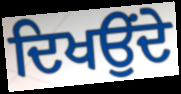
ਦਿਖਉਂਦੇ